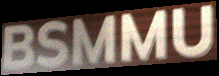
BSMMU